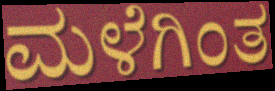
ಮಳೆಗಿಂತ